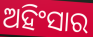
ଅହିଂସାର